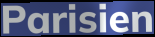
Parisien